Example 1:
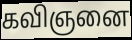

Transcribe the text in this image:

கவிஞனை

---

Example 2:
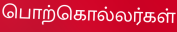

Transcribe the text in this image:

பொற்கொல்லர்கள்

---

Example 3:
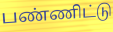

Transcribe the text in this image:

பண்ணிட்டு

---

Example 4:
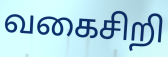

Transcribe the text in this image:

வகைசிறி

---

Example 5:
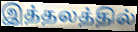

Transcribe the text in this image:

இத்தலத்தில்